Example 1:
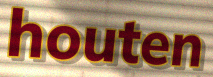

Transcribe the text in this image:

houten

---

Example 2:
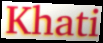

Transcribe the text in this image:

Khati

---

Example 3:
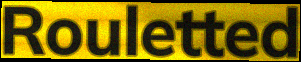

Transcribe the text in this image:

Rouletted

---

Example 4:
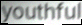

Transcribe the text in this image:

youthful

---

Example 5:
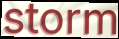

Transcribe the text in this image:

storm